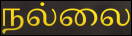
நல்லை